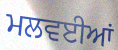
ਮਲਵਈਆਂ